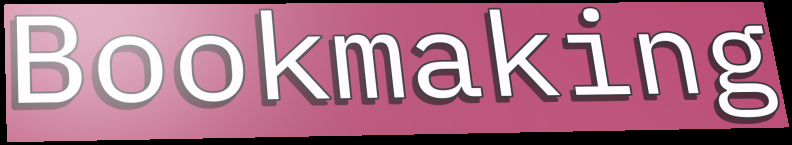
Bookmaking